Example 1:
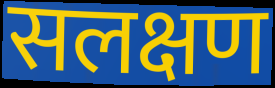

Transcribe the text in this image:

सलक्षण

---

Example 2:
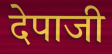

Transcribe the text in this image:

देपाजी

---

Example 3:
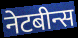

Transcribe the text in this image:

नेटबीन्स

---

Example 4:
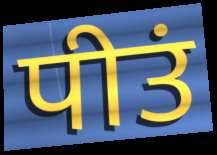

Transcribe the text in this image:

पीउं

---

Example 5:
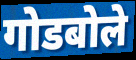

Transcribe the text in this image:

गोडबोले